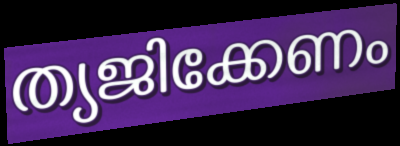
ത്യജിക്കേണം